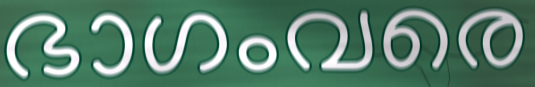
ഭാഗംവരെ